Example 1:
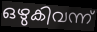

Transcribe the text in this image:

ഒഴുകിവന്ന്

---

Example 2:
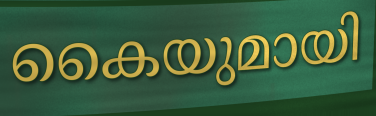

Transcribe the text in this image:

കൈയുമായി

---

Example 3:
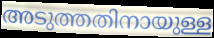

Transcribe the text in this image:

അടുത്തതിനായുള്ള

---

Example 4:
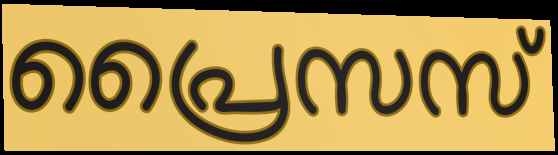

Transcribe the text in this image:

പ്രൈസസ്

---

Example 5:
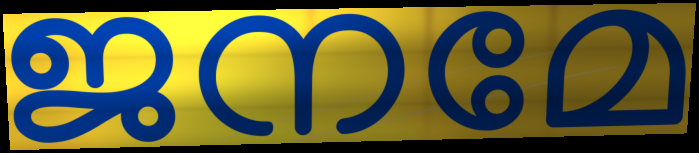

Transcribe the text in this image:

ജനമേ